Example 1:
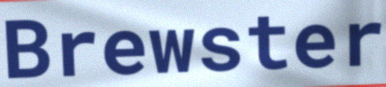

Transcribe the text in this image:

Brewster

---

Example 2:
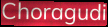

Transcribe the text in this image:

Choragudi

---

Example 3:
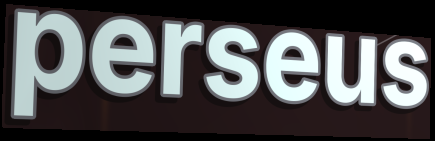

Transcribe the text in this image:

perseus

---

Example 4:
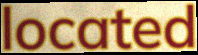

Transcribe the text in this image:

located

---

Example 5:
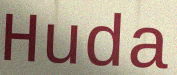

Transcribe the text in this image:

Huda